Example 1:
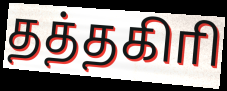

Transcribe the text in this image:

தத்தகிரி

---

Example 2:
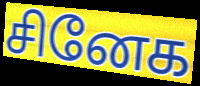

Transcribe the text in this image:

சினேக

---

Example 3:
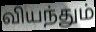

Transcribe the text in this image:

வியந்தும்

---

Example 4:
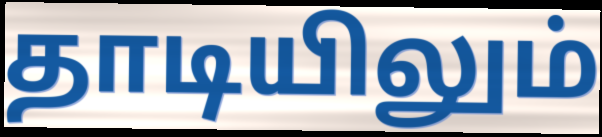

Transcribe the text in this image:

தாடியிலும்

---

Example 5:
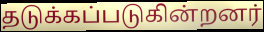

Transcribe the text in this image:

தடுக்கப்படுகின்றனர்